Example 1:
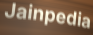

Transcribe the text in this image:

Jainpedia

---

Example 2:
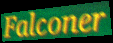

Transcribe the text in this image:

Falconer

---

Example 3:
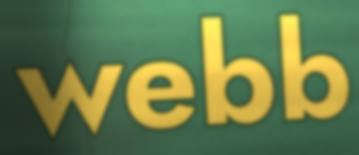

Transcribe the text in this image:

webb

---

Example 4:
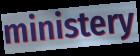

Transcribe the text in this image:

ministery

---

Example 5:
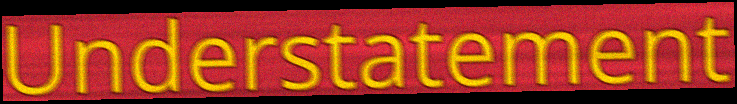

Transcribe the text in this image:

Understatement